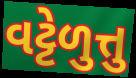
વટ્ટેળુત્તુ